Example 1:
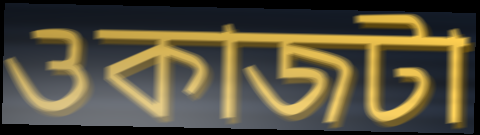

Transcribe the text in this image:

ওকাজটা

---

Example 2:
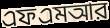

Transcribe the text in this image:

এফএমআর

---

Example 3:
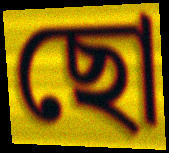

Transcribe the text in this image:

ছো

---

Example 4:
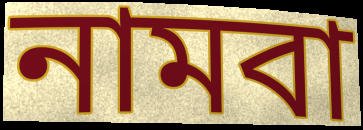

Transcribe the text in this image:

নামবা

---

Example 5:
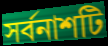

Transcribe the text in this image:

সর্বনাশটি